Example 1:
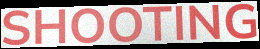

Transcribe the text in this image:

SHOOTING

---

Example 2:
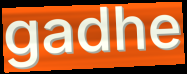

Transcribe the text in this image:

gadhe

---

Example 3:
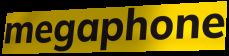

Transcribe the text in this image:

megaphone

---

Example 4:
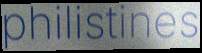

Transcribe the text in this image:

philistines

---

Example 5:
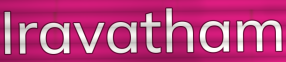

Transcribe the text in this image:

Iravatham